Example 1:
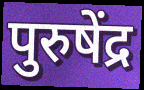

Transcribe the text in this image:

पुरुषेंद्र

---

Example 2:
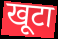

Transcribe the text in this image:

खूटा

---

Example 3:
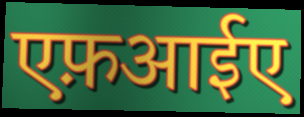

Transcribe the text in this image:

एफ़आईए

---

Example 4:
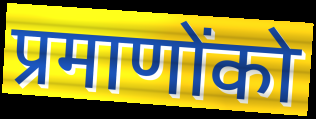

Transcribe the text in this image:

प्रमाणोंको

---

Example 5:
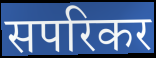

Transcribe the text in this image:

सपरिकर